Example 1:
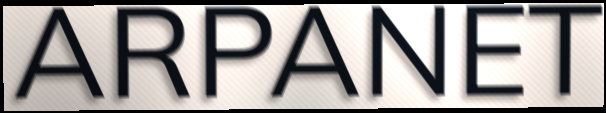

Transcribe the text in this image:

ARPANET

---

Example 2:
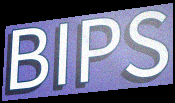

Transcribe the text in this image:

BIPS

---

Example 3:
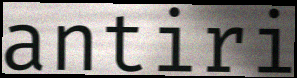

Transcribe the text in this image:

antiri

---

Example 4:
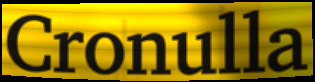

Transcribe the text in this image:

Cronulla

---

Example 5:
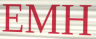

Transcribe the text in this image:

EMH